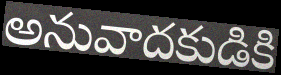
అనువాదకుడికి